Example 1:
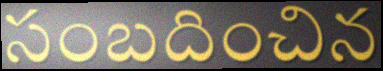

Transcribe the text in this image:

సంబదించిన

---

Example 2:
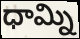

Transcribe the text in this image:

ధామ్ని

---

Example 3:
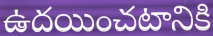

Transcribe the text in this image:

ఉదయించటానికి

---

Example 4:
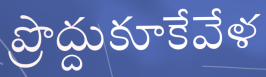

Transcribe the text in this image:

ప్రొద్దుకూకేవేళ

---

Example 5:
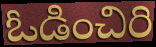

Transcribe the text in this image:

ఓడించిరి